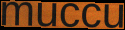
muccu